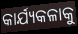
କାର୍ଯ୍ୟକଳାକୁ